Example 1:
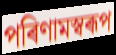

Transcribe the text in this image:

পৰিণামস্বৰূপ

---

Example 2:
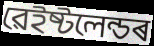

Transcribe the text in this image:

ৱেইষ্টলেন্ডৰ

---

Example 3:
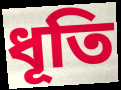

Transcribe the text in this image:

ধূতি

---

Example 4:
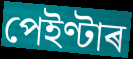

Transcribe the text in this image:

পেইণ্টাৰ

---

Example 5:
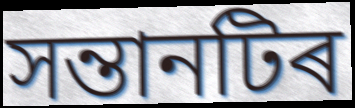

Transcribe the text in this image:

সন্তানটিৰ